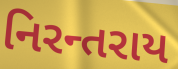
નિરન્તરાય